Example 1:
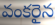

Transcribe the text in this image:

వంకరైన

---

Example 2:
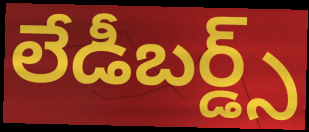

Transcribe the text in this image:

లేడీబర్డ్స్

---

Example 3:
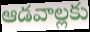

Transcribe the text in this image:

ఆడవాల్లకు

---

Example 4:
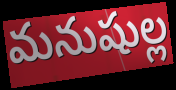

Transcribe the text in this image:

మనుషుల్ల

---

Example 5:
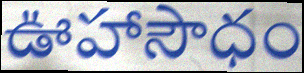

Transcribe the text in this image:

ఊహాసౌధం